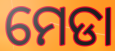
ମେଡା